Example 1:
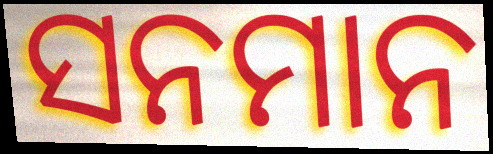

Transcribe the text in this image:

ସନମାନ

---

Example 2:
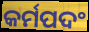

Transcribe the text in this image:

କର୍ମପଦଂ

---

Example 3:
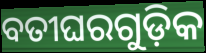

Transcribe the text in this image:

ବତୀଘରଗୁଡ଼ିକ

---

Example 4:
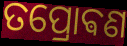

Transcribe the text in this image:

ତପ୍ରୋଵଣ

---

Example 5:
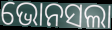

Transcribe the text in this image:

ଭୋନସଲା